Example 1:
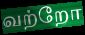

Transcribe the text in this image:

வற்றோ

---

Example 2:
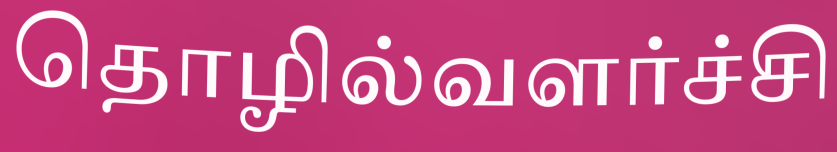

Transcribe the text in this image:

தொழில்வளர்ச்சி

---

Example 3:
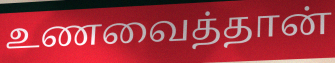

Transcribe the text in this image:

உணவைத்தான்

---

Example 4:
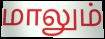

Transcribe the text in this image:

மாலும்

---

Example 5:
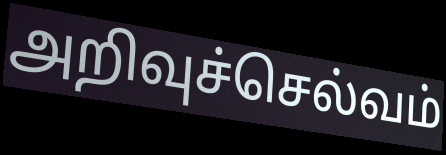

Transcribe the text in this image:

அறிவுச்செல்வம்